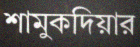
শামুকদিয়ার